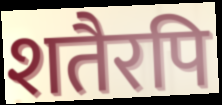
शतैरपि